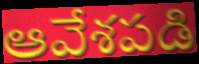
ఆవేశపడి